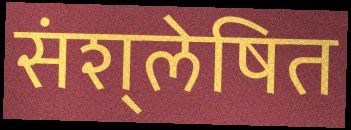
संश्लेषित